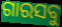
ଗାରସବୁ